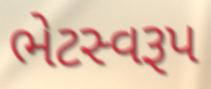
ભેટસ્વરૂપ